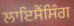
ਲਾਇਸੈਂਸਿੰਗ